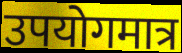
उपयोगमात्र